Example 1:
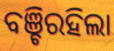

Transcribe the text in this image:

ବଞ୍ଚିରହିଲା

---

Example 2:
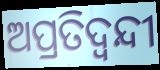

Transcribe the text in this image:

ଅପ୍ରତିଦ୍ବନ୍ଦୀ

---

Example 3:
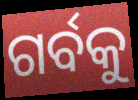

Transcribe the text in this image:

ଗର୍ବକୁ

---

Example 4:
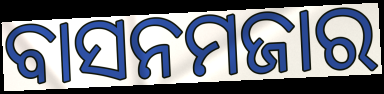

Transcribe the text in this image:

ବାସନମଜାର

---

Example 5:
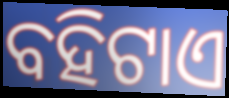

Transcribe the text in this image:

ବହିଟାଏ